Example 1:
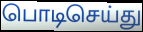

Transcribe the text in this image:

பொடிசெய்து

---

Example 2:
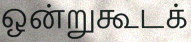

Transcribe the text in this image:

ஒன்றுகூடக்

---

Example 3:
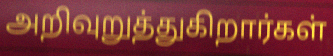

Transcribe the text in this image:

அறிவுறுத்துகிறார்கள்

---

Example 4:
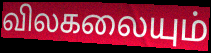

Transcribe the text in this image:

விலகலையும்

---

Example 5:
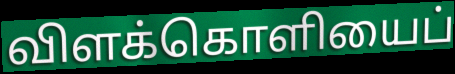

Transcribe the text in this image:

விளக்கொளியைப்